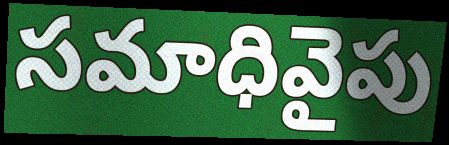
సమాధివైపు